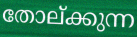
തോല്ക്കുന്ന